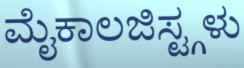
ಮೈಕಾಲಜಿಸ್ಟ್ಗಳು